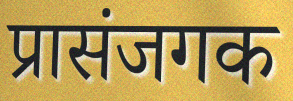
प्रासंजगक